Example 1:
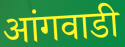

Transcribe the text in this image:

आंगवाडी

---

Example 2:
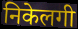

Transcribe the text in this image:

निकेलगी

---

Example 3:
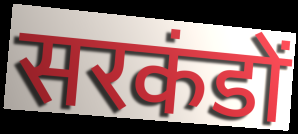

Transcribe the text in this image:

सरकंडों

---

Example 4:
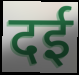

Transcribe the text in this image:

दई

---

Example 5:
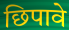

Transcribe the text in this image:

छिपावे